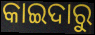
କାଇଦାରୁ